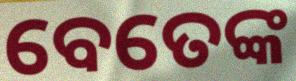
ବେତେଙ୍କ